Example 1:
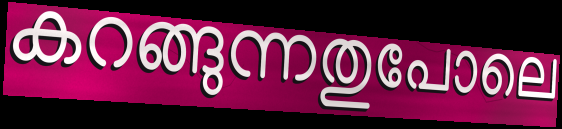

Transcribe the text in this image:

കറങ്ങുന്നതുപോലെ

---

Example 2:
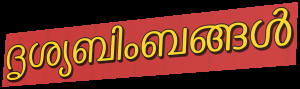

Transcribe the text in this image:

ദൃശ്യബിംബങ്ങൾ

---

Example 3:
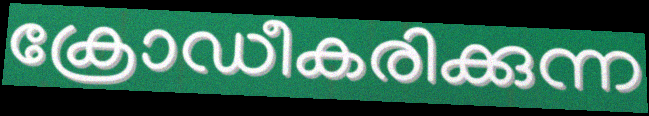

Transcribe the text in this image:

ക്രോഡീകരിക്കുന്ന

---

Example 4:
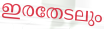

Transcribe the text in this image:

ഇരതേടലും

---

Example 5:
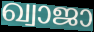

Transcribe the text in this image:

ഖ്വാജാ